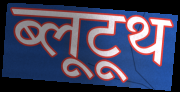
ब्‍लूटूथ